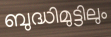
ബുദ്ധിമുട്ടിലും